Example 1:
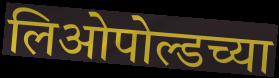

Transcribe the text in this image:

लिओपोल्डच्या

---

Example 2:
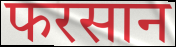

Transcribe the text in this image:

फरसान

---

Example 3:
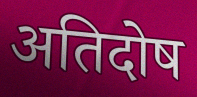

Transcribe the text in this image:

अतिदोष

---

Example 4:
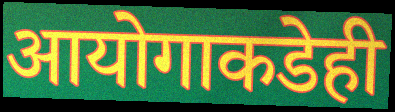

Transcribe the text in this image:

आयोगाकडेही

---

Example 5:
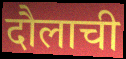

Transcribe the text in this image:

दौलाची